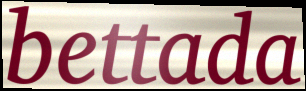
bettada